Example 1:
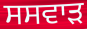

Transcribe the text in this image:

ਸਸਵਾੜ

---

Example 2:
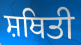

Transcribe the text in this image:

ਸ਼ਥਿਤੀ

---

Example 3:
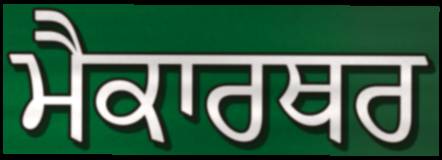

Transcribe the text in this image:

ਮੈਕਾਰਥਰ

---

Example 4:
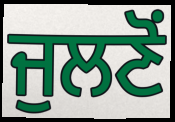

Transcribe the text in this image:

ਜੁਲਣੋਂ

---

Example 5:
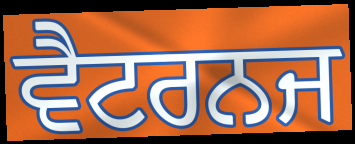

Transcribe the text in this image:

ਵੈਟਰਨਜ